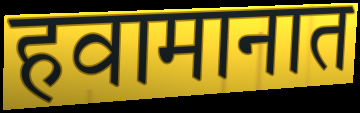
हवामानात